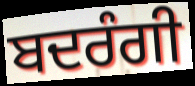
ਬਦਰੰਗੀ